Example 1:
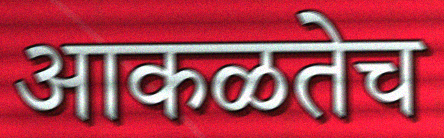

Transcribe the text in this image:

आकळतेच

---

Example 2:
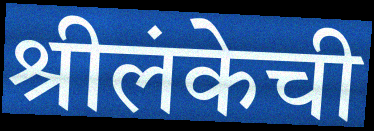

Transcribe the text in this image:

श्रीलंकेची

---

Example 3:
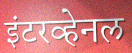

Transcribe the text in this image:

इंटरव्हेनल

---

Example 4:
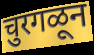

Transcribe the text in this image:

चुरगळून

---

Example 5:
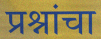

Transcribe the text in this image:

प्रश्नांचा